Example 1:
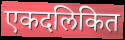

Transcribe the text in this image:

एकदलिकित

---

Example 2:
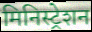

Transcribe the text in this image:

मिनिस्ट्रेशन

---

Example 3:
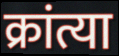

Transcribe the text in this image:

क्रांत्या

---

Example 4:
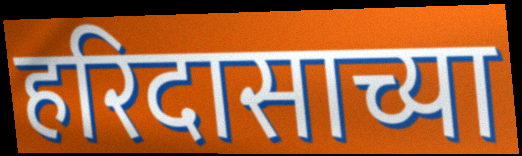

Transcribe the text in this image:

हरिदासाच्या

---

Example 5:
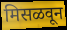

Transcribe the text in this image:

मिसळवून